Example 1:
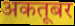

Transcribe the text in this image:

अकतूबर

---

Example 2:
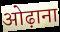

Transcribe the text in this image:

ओढ़ाना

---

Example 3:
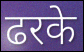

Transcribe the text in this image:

ढरके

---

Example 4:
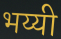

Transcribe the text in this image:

भय्यी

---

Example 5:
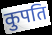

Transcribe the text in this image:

कुपति